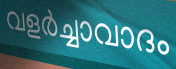
വളർച്ചാവാദം